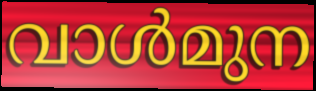
വാൾമുന